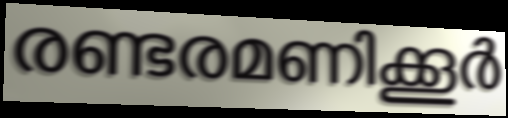
രണ്ടരമണിക്കൂർ